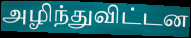
அழிந்துவிட்டன